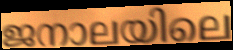
ജനാലയിലെ